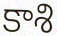
కాశి